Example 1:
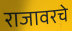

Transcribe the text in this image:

राजावरचे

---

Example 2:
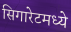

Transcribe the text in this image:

सिगारेटमध्ये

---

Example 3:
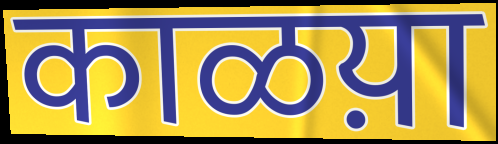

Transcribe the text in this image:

काळय़ा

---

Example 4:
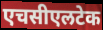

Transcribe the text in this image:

एचसीएलटेक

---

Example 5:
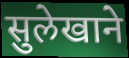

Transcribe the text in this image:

सुलेखाने